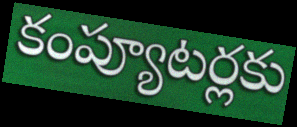
కంప్యూటర్లకు